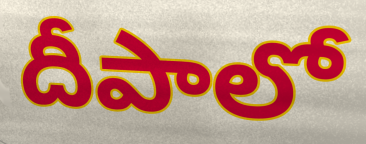
దీపాలో